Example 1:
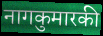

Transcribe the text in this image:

नागकुमारकी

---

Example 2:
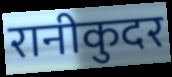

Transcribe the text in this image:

रानीकुदर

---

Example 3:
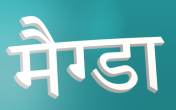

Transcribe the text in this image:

मैग्डा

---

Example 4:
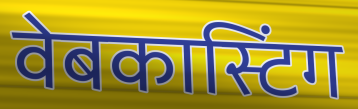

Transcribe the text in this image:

वेबकास्टिंग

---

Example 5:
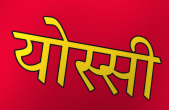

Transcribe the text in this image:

योस्सी